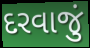
દરવાજું